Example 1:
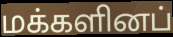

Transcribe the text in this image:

மக்களினப்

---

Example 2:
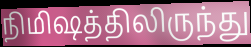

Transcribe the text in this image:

நிமிஷத்திலிருந்து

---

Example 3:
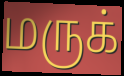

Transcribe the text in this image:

மருக்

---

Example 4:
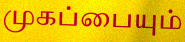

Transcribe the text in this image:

முகப்பையும்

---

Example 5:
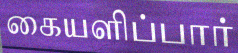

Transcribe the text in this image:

கையளிப்பார்